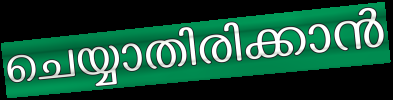
ചെയ്യാതിരിക്കാൻ